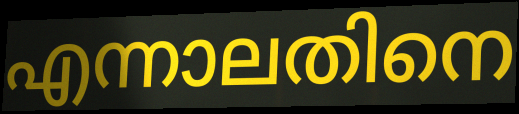
എന്നാലതിനെ